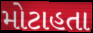
મોટાહતા